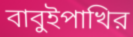
বাবুইপাখির